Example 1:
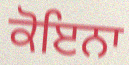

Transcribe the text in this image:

ਕੋਇਨਾ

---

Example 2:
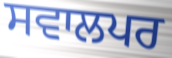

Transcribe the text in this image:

ਸਵਾਲਪਰ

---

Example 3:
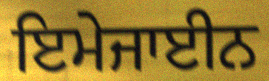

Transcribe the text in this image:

ਇਮੇਜਾਈਨ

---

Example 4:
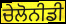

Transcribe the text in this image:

ਚੇਲੋਨੀਡੀ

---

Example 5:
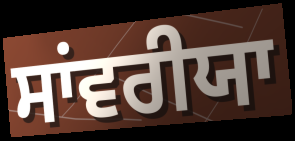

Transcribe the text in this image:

ਸਾਂਵਰੀਯਾ